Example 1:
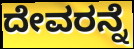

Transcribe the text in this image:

ದೇವರನ್ನೆ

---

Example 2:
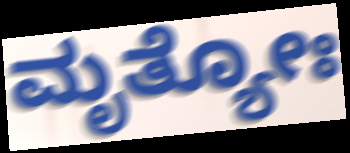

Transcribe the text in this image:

ಮೃತ್ಯೋಃ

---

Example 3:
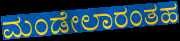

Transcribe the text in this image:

ಮಂಡೇಲಾರಂತಹ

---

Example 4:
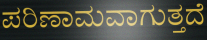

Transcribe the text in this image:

ಪರಿಣಾಮವಾಗುತ್ತದೆ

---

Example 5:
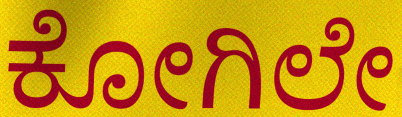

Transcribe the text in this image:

ಕೋಗಿಲೇ